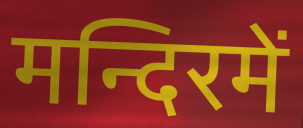
मन्दिरमें